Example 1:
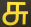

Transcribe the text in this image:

சு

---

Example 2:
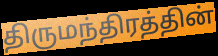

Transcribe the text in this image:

திருமந்திரத்தின்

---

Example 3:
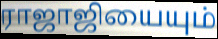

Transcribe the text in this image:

ராஜாஜியையும்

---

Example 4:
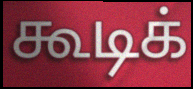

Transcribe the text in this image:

கூடிக்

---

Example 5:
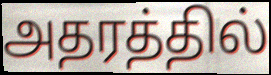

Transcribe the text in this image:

அதரத்தில்